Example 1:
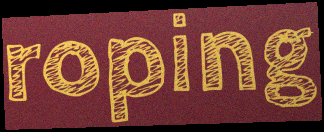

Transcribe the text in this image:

roping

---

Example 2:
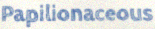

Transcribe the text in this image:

Papilionaceous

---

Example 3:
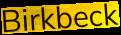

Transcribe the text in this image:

Birkbeck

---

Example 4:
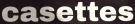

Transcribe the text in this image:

casettes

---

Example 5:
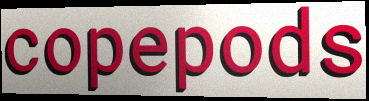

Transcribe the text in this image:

copepods